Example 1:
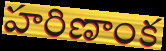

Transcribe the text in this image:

హరిణాంక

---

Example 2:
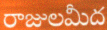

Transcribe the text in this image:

రాజులమీద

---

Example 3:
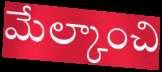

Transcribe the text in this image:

మేల్కాంచి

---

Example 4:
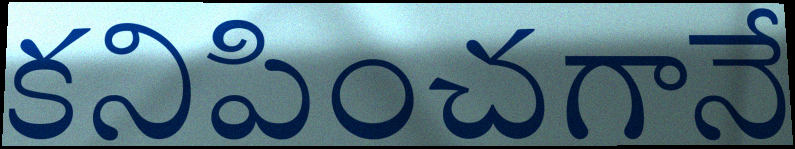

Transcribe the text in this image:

కనిపించగానే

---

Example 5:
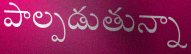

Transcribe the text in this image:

పాల్పడుతున్నా